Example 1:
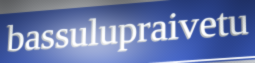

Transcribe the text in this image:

bassulupraivetu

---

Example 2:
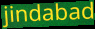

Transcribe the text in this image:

jindabad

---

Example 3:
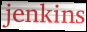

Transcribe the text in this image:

jenkins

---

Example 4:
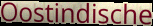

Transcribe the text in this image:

Oostindische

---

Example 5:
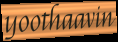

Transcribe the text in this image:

yoothaavin